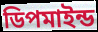
ডিপমাইন্ড